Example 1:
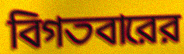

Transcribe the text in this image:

বিগতবারের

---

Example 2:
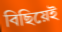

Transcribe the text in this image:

বিছিয়েই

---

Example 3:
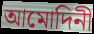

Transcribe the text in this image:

আমোদিনী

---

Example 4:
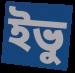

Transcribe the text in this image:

ইভু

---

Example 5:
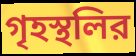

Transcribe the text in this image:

গৃহস্থলির